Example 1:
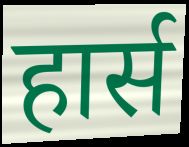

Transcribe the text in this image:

हार्स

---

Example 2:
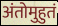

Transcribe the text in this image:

अंतोमुहुतं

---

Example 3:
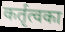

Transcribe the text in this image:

कर्तृत्वका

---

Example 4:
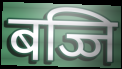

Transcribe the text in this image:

बज्जि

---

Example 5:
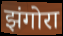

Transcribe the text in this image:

झंगोरा